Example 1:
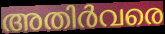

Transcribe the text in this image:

അതിർവരെ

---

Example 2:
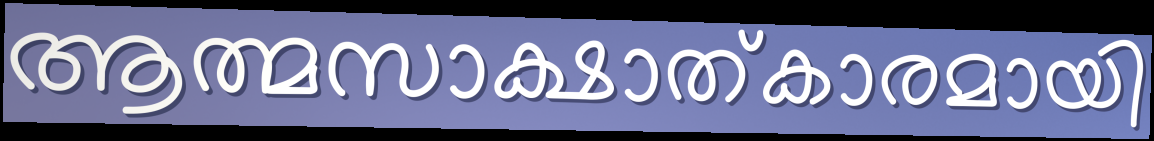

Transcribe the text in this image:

ആത്മസാക്ഷാത്കാരമായി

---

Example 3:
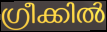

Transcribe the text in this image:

ഗ്രീക്കിൽ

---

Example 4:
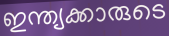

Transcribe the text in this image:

ഇന്ത്യക്കാരുടെ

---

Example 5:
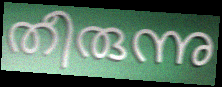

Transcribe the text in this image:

തീരുന്നു